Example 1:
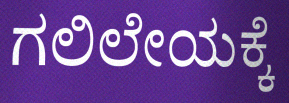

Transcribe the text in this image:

ಗಲಿಲೇಯಕ್ಕೆ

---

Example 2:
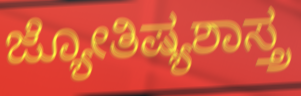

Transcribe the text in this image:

ಜ್ಯೋತಿಷ್ಯಶಾಸ್ತ್ರ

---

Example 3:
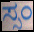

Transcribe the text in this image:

ಸ್ಸಂ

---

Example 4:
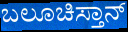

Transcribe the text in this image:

ಬಲೂಚಿಸ್ತಾನ್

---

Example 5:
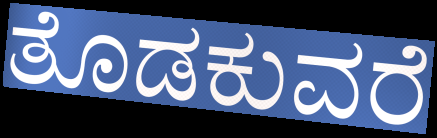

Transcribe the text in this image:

ತೊಡಕುವರೆ